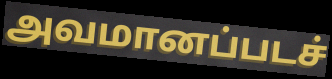
அவமானப்படச்